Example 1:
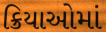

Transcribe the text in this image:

ક્રિયાઓમાં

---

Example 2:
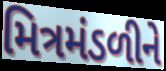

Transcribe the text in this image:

મિત્રમંડળીને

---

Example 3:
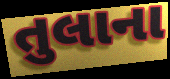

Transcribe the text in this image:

તુલાના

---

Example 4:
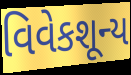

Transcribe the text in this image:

વિવેકશૂન્ય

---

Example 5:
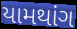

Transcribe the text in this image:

યામથાંગ